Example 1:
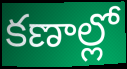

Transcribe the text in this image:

కణాల్లో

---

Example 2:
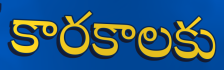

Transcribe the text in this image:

కారకాలకు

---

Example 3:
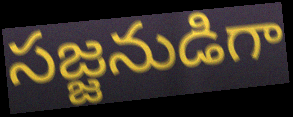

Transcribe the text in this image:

సజ్జనుడిగా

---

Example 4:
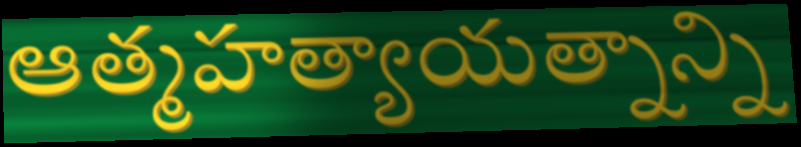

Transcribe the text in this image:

ఆత్మహత్యాయత్నాన్ని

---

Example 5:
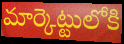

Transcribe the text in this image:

మార్కెట్టులోకి